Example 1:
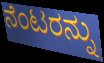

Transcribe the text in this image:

ನೆಂಟರನ್ನು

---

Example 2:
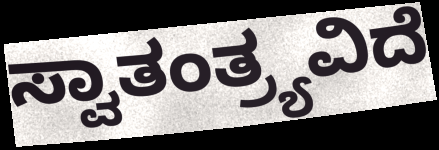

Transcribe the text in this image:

ಸ್ವಾತಂತ್ರ್ಯವಿದೆ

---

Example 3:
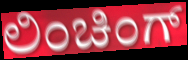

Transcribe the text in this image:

ಲಿಂಚಿಂಗ್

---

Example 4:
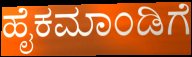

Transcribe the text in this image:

ಹೈಕಮಾಂಡಿಗೆ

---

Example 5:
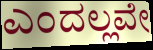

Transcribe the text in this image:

ಎಂದಲ್ಲವೇ